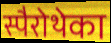
स्पैरोथेका